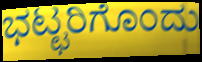
ಭಟ್ಟರಿಗೊಂದು